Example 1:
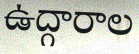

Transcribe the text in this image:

ఉద్గారాల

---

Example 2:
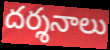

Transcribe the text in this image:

దర్శనాలు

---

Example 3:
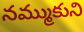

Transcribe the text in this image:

నమ్ముకుని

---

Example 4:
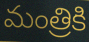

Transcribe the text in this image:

మంత్రికి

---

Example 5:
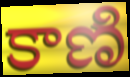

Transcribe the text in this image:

కాణి